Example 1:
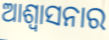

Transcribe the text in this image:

ଆଶ୍ୱାସନାର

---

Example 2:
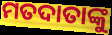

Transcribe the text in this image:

ମତଦାତାଙ୍କୁ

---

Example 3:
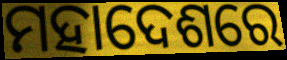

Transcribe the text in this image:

ମହାଦେଶରେ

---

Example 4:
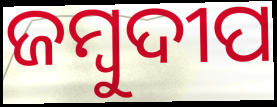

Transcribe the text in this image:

ଜମ୍ବୁଦୀପ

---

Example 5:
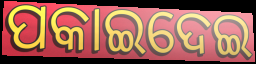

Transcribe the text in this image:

ପକାଇଦେଇ